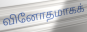
வினோதமாகக்